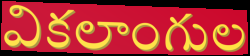
వికలాంగుల